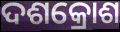
ଦଶକ୍ରୋଶ